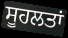
ਸੂਹਲਤਾਂ